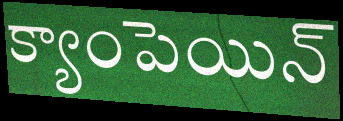
క్యాంపెయిన్